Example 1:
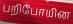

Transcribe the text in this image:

பறிபோயின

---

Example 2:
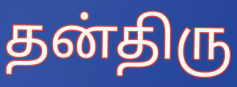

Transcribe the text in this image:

தன்திரு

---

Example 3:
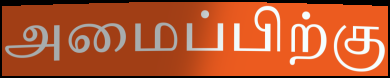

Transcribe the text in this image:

அமைப்பிற்கு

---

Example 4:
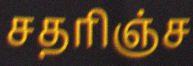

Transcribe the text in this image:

சதரிஞ்ச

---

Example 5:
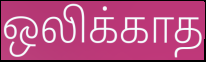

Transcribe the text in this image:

ஒலிக்காத